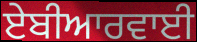
ਏਬੀਆਰਵਾਈ